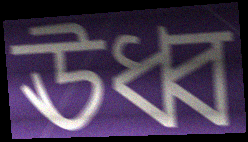
ঊধ্ব